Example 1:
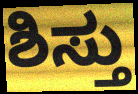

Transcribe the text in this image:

ಶಿಸ್ತು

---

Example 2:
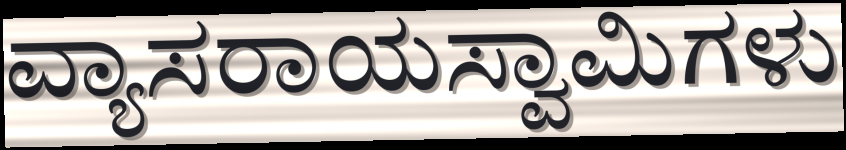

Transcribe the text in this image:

ವ್ಯಾಸರಾಯಸ್ವಾಮಿಗಳು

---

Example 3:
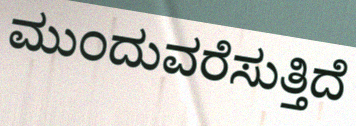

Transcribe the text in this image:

ಮುಂದುವರೆಸುತ್ತಿದೆ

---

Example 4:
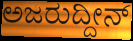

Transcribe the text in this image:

ಅಜರುದ್ದೀನ್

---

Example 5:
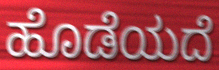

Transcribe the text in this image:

ಹೊಡೆಯದೆ